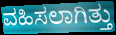
ವಹಿಸಲಾಗಿತ್ತು